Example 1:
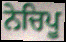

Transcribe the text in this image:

ਨੇਚਿਪੂ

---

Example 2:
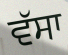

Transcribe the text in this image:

ਵੱਸਾ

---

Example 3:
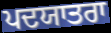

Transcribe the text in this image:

ਪਦਯਾਤਰਾ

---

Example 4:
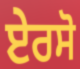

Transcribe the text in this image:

ਏਰਸੋ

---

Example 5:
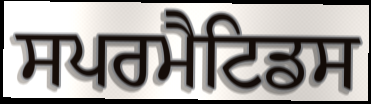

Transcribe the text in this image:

ਸਪਰਮੈਟਿਡਸ